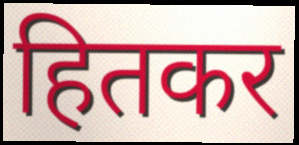
हितकर